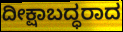
ದೀಕ್ಷಾಬದ್ಧರಾದ